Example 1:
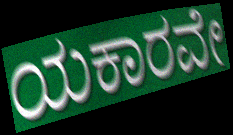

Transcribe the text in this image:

ಯಕಾರವೇ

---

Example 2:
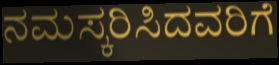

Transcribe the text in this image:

ನಮಸ್ಕರಿಸಿದವರಿಗೆ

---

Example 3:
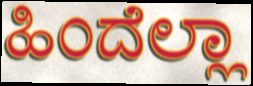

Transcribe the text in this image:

ಹಿಂದೆಲ್ಲಾ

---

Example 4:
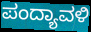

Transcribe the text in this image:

ಪಂದ್ಯಾವಳಿ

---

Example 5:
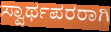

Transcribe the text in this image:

ಸ್ವಾರ್ಥಪರರಾಗಿ